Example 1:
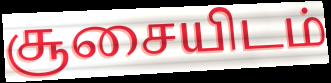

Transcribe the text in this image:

சூசையிடம்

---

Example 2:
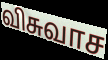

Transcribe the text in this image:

விசுவாச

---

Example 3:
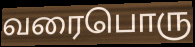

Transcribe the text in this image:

வரைபொரு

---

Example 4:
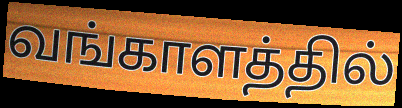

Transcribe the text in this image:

வங்காளத்தில்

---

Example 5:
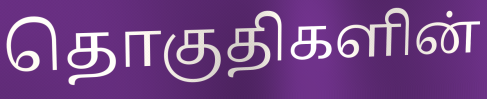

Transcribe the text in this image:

தொகுதிகளின்